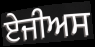
ਏਜੀਅਸ